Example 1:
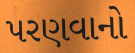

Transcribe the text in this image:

પરણવાનો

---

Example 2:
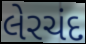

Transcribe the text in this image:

લેરચંદ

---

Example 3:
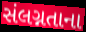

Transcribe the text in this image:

સંલગ્નતાના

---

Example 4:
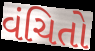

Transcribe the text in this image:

વંચિતો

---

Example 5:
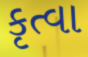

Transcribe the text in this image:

કૃત્વા